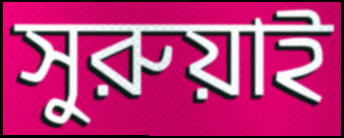
সুরুয়াই